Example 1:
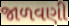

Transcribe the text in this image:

જાળવણી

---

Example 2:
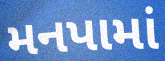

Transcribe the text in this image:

મનપામાં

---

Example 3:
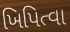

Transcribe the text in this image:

ખિપિત્વા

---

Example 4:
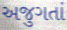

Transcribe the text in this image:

અજુગતાં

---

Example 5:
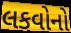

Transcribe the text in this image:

લકવોનો